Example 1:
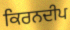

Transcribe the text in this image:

ਕਿਰਨਦੀਪ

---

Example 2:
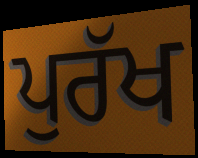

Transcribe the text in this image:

ਪੁਰੱਖ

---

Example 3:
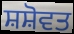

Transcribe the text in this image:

ਸ਼ਸ਼ੋਵਤ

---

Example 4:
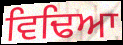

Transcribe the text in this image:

ਵਿਢਿਆ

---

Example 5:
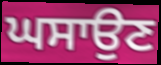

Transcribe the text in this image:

ਘਸਾਉਣ